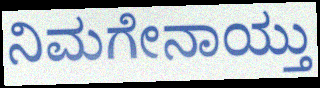
ನಿಮಗೇನಾಯ್ತು